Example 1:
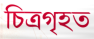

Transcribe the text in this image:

চিত্ৰগৃহত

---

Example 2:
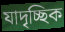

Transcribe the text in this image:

যাদৃচ্ছিক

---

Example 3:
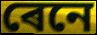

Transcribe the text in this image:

ৰেনে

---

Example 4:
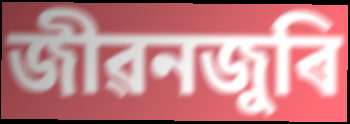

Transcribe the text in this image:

জীৱনজুৰি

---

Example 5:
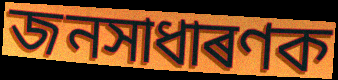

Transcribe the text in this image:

জনসাধাৰণক